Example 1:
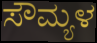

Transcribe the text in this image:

ಸೌಮ್ಯಳ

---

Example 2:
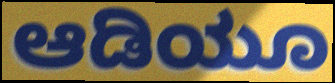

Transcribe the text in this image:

ಆಡಿಯೂ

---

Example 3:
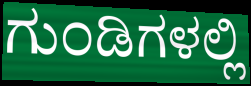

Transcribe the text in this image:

ಗುಂಡಿಗಳಲ್ಲಿ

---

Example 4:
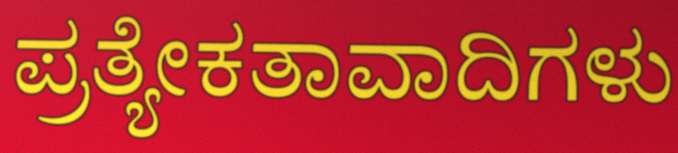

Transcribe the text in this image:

ಪ್ರತ್ಯೇಕತಾವಾದಿಗಳು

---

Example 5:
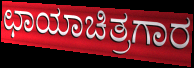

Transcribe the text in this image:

ಛಾಯಾಚಿತ್ರಗಾರ